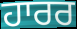
ਹਾਰਰ